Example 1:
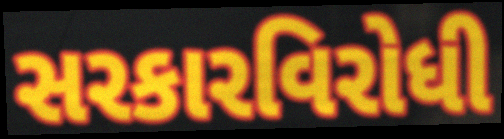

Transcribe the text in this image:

સરકારવિરોધી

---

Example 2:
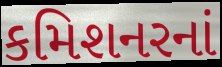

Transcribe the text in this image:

કમિશનરનાં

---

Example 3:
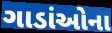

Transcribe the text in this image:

ગાડાંઓના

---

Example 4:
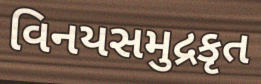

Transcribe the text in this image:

વિનયસમુદ્રકૃત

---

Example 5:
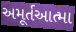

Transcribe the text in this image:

અમૂર્તઆત્મા